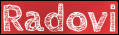
Radovi